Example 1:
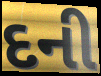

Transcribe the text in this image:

દની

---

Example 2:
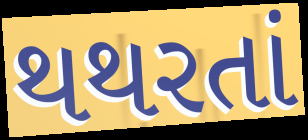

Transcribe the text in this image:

થથરતાં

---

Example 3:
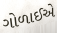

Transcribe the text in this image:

ગોળાઈએ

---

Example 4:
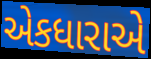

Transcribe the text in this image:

એકધારાએ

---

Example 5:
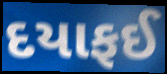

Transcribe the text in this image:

દયાફઈ